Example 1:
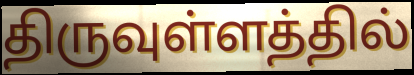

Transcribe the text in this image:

திருவுள்ளத்தில்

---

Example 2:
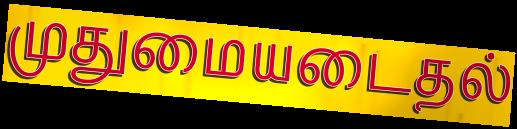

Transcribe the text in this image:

முதுமையடைதல்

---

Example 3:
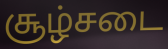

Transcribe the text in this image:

சூழ்சடை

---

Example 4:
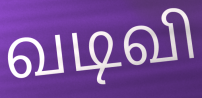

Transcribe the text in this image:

வடிவி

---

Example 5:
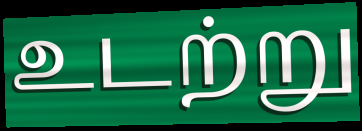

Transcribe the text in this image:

உடற்று